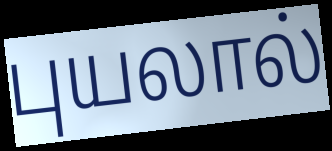
புயலால்